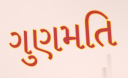
ગુણમતિ